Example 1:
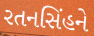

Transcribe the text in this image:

રતનસિંહને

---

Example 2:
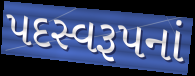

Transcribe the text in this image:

પદસ્વરૂપનાં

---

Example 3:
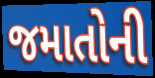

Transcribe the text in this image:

જમાતોની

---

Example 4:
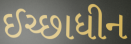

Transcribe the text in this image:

ઈચ્છાધીન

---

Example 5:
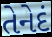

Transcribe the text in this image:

તેનેદં